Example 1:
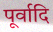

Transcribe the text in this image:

पूर्वादि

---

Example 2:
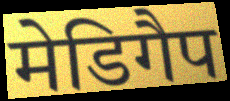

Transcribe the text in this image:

मेडिगैप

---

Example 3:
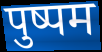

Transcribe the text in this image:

पुष्पम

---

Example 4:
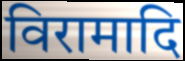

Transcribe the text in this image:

विरामादि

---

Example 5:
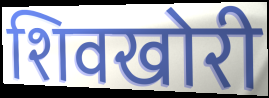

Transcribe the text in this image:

शिवखोरी